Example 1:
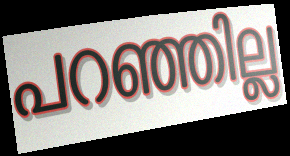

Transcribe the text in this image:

പറഞ്ഞില്ല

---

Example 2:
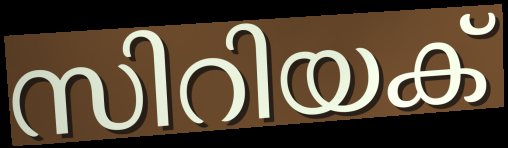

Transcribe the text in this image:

സിറിയക്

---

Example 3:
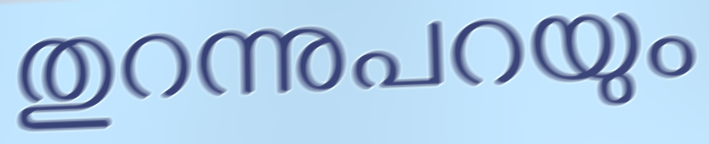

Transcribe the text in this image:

തുറന്നുപറയും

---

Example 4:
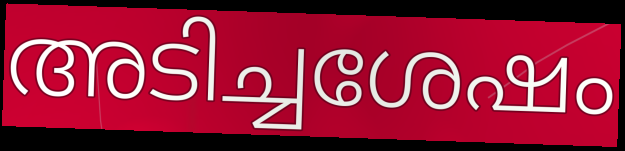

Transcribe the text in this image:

അടിച്ചശേഷം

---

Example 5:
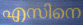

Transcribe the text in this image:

എസിനെ